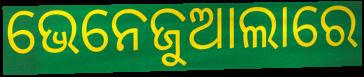
ଭେନେଜୁଆଲାରେ